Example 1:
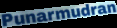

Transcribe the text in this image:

Punarmudran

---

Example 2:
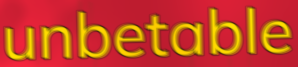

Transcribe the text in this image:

unbetable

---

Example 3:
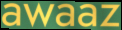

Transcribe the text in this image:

awaaz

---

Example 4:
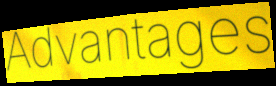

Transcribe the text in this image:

Advantages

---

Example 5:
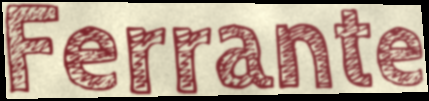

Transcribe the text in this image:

Ferrante